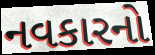
નવકારનો